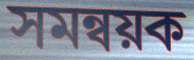
সমন্বয়ক